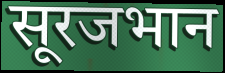
सूरजभान